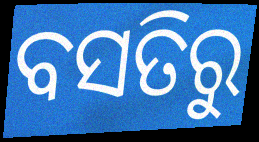
ବସତିରୁ